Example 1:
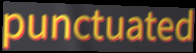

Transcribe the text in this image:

punctuated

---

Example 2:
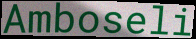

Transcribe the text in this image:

Amboseli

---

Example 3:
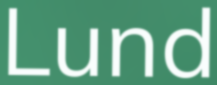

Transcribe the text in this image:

Lund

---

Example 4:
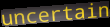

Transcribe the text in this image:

uncertain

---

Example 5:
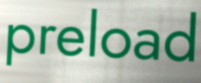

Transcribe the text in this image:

preload